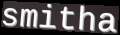
smitha